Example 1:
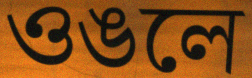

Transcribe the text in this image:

ওঙলে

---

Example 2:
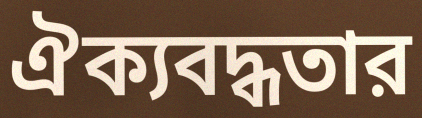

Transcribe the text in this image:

ঐক্যবদ্ধতার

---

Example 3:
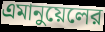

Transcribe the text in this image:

এমানুয়েলের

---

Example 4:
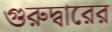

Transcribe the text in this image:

গুরুদ্বারের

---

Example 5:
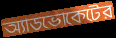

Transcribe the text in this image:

অ্যাডভোকেটের